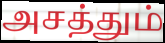
அசத்தும்